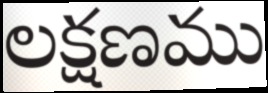
లక్షణము